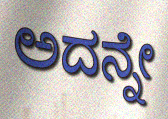
ಅದನ್ನೇ